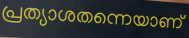
പ്രത്യാശതന്നെയാണ്